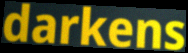
darkens